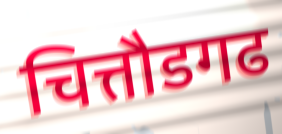
चित्तौडगढ